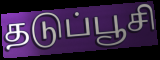
தடுப்பூசி